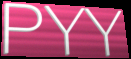
PYY